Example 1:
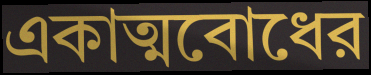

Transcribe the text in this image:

একাত্মবোধের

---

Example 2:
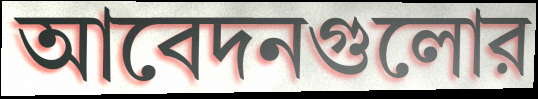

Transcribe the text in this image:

আবেদনগুলোর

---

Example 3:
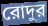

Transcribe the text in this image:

রোদুর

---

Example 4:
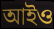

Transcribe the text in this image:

আইও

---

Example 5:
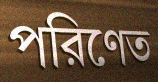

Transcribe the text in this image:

পরিণেত